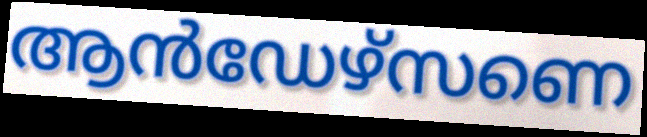
ആൻഡേഴ്സണെ